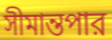
সীমান্তপার